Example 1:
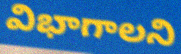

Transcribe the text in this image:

విభాగాలని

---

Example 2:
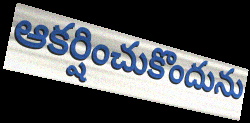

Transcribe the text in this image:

ఆకర్షించుకొందును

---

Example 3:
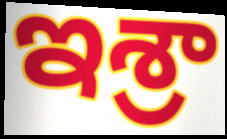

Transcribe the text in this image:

ఇశ్రా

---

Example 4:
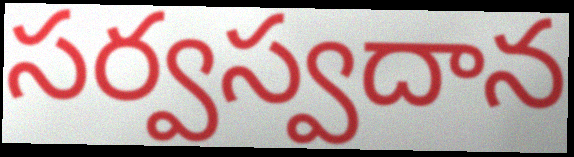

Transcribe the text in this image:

సర్వస్వదాన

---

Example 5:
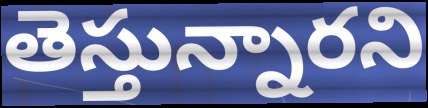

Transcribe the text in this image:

తెస్తున్నారని